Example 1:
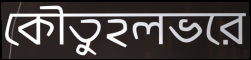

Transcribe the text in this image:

কৌতুহলভরে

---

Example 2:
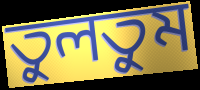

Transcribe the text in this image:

তুলতুম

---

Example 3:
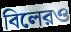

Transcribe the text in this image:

বিলেরও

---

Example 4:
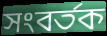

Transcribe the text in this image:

সংবর্তক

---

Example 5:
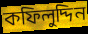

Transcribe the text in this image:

কফিলুদ্দিন